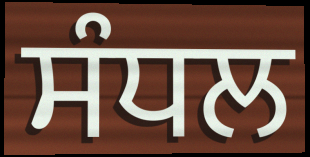
ਸੰਧਲ